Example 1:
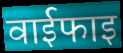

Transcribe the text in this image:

वाईफाइ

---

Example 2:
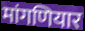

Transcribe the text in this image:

मांगणियार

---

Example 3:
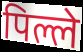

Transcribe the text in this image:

पिल्ले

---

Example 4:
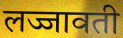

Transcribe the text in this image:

लज्जावती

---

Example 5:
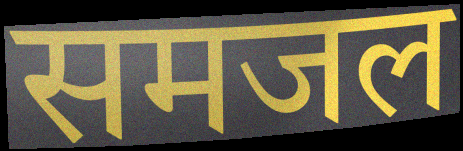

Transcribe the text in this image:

समजल